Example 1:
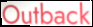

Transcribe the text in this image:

Outback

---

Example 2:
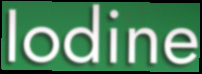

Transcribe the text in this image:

Iodine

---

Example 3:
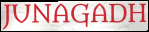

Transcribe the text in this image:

JUNAGADH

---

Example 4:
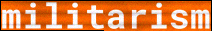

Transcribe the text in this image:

militarism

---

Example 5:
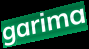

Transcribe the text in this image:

garima